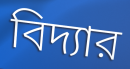
বিদ্যার